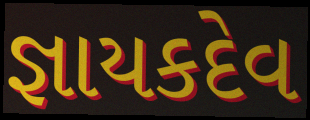
જ્ઞાયકદેવ